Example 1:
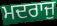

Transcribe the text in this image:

ਮਦਰਾਜੁ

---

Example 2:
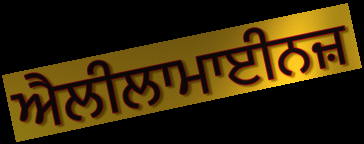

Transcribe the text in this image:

ਐਲੀਲਾਮਾਈਨਜ਼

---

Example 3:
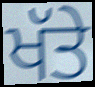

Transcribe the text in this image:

ਖੱਤੇ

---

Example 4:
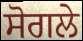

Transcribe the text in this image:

ਸੋਗਲੇ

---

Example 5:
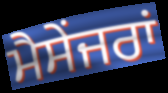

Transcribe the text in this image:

ਮੈਸੇਂਜਰਾਂ